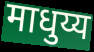
माधुय्य